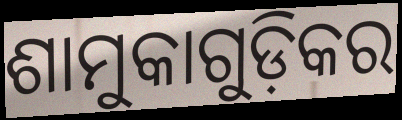
ଶାମୁକାଗୁଡ଼ିକର